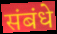
संबंधे